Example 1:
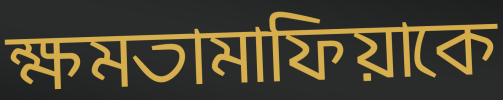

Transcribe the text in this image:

ক্ষমতামাফিয়াকে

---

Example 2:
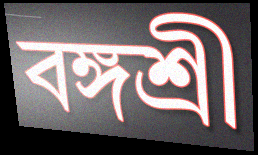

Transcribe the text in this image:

বঙ্গশ্রী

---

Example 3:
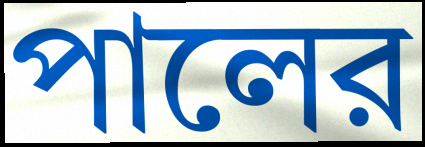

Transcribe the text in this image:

পালের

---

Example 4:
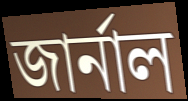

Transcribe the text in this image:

জার্নাল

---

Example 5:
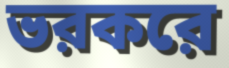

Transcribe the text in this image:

ভরকরে